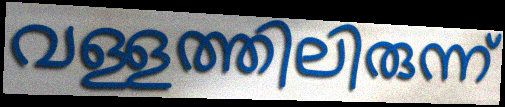
വള്ളത്തിലിരുന്ന്